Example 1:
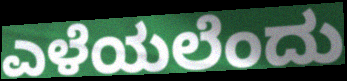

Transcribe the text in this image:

ಎಳೆಯಲೆಂದು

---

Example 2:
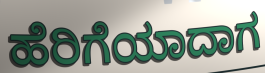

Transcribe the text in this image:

ಹೆರಿಗೆಯಾದಾಗ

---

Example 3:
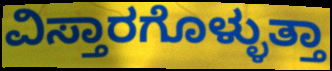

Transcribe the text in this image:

ವಿಸ್ತಾರಗೊಳ್ಳುತ್ತಾ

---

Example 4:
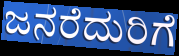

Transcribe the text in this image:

ಜನರೆದುರಿಗೆ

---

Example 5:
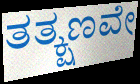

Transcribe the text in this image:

ತತ್ಕ್ಷಣವೇ